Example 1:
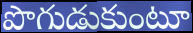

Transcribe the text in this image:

పొగుడుకుంటూ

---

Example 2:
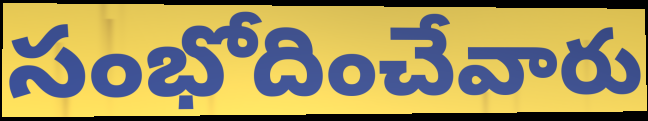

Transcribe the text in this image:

సంభోదించేవారు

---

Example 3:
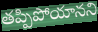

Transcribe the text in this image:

తప్పిపోయానని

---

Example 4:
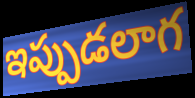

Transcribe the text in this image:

ఇప్పుడలాగ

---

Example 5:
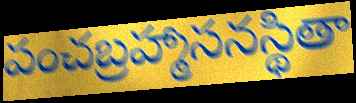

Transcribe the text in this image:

పంచబ్రహ్మాసనస్థితా